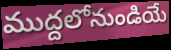
ముద్దలోనుండియే